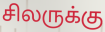
சிலருக்கு